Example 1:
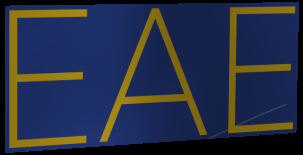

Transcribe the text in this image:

EAE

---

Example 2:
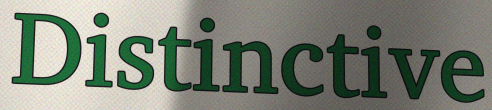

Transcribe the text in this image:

Distinctive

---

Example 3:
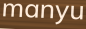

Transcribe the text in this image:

manyu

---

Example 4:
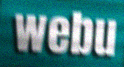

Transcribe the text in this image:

webu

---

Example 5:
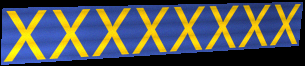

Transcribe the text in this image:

XXXXXXXX